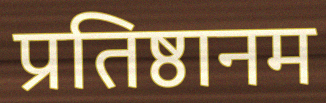
प्रतिष्ठानम